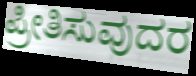
ಪ್ರೀತಿಸುವುದರ